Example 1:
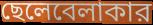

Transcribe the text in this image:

ছেলেবেলাকার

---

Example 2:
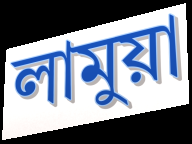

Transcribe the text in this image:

লামুয়া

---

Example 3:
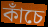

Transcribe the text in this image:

কাঁচে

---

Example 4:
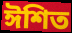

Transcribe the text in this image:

ঈশিত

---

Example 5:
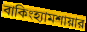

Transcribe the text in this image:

বাকিংহ্যামশায়ার